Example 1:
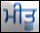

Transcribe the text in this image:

ਮੀਤੂ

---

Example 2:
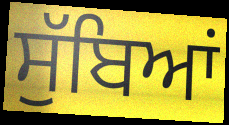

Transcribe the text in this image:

ਸੁੱਬਿਆਂ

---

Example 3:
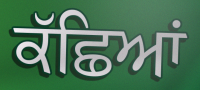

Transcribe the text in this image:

ਕੱਛਿਆਂ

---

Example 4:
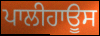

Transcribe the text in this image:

ਪਾਲੀਹਾਊਸ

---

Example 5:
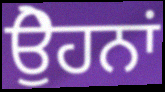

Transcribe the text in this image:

ਉੇਹਨਾਂ